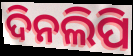
ଦିନଲିପି